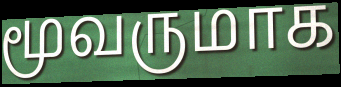
மூவருமாக